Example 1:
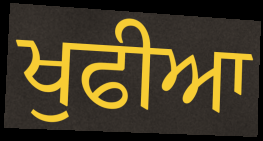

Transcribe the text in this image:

ਖੁਫੀਆ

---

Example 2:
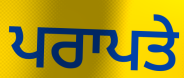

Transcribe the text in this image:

ਪਰਾਪਤੇ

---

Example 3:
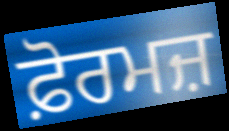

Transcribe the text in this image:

ਫ਼ੋਰਮਜ਼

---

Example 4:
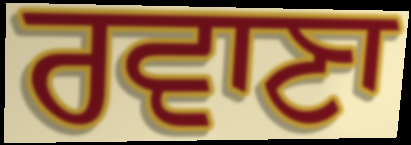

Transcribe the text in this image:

ਰਵਾਣਾ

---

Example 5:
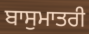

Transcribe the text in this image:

ਬਾਸੁਮਾਤਰੀ